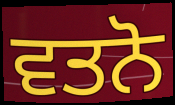
ਵਤਨੋ